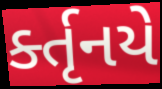
ર્ક્તૃનયે